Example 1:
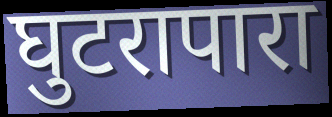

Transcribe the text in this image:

घुटरापारा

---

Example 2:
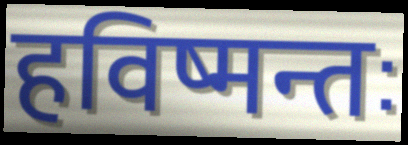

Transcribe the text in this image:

हविष्मन्तः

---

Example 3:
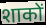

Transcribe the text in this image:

शाकों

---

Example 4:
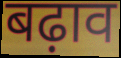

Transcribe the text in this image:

बढ़ाव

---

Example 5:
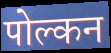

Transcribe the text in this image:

पोल्कन